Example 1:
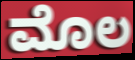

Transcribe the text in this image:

ಮೊಲ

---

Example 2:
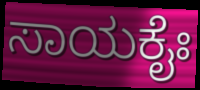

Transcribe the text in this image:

ಸಾಯಕೈಃ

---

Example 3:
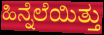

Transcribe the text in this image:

ಹಿನ್ನೆಲೆಯಿತ್ತು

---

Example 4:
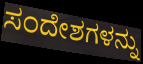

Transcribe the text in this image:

ಸಂದೇಶಗಳನ್ನು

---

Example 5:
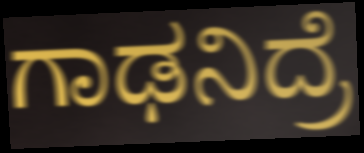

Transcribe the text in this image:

ಗಾಢನಿದ್ರೆ